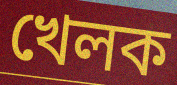
খেলক